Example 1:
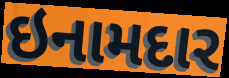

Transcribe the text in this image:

ઇનામદાર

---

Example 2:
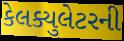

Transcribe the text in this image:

કેલક્યુલેટરની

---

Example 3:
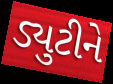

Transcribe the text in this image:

ડ્યુટીને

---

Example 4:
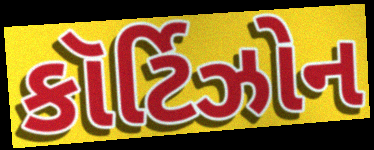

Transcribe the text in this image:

કૉર્ટિઝોન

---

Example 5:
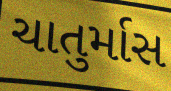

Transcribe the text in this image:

ચાતુર્માસ